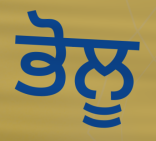
ਭੋਲੂ